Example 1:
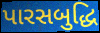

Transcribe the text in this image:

પારસબુદ્ધિ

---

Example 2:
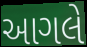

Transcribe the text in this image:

આગલે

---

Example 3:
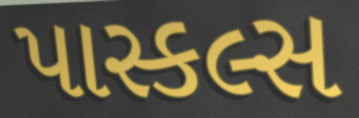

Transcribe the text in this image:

પાસ્કલ્સ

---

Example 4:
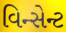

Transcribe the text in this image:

વિન્સેન્ટ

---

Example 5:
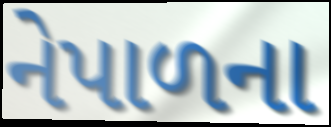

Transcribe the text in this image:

નેપાળના